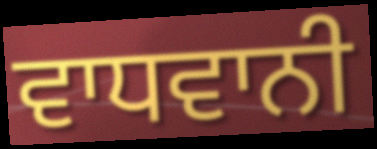
ਵਾਧਵਾਨੀ